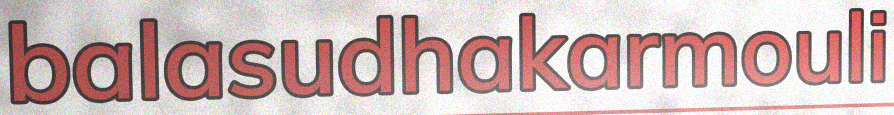
balasudhakarmouli